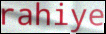
rahiye